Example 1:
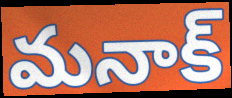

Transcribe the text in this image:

మనాక్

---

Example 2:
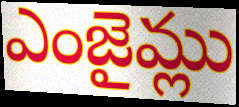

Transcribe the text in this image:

ఎంజైమ్లు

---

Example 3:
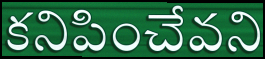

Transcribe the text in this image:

కనిపించేవని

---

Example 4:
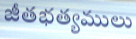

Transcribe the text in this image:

జీతభత్యములు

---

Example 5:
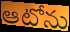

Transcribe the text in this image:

ఆటోను